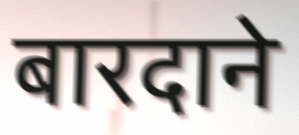
बारदाने